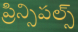
ప్రిన్సిపల్స్